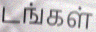
டங்கள்